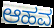
ಆಹವ